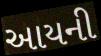
આયની